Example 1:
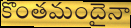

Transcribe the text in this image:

కొంతమందైనా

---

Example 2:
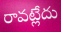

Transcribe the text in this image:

రావట్లేదు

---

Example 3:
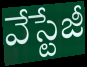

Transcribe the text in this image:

వేస్టేజీ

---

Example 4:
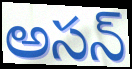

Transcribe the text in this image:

అసన్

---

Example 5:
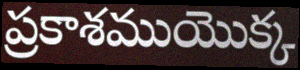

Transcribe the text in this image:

ప్రకాశముయొక్క